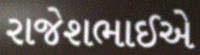
રાજેશભાઈએ